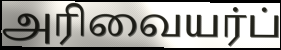
அரிவையர்ப்